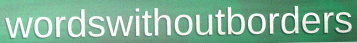
wordswithoutborders